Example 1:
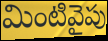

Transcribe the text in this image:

మింటివైపు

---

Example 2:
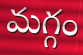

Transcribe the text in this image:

మగ్గం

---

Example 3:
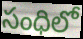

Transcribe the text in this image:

సంధిలో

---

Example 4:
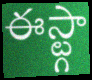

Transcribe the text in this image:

ఈస్ట్గా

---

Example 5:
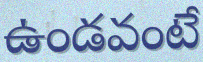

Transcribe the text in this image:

ఉండవంటే